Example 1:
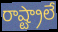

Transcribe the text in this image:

రాష్ట్రాలే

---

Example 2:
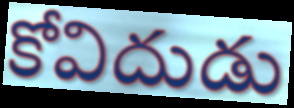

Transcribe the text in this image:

కోవిదుడు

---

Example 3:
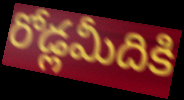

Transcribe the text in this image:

రోడ్లమీదికి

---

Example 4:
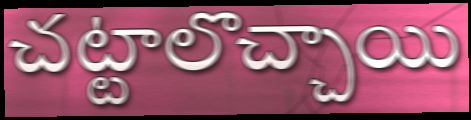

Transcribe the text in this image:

చట్టాలొచ్చాయి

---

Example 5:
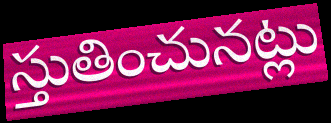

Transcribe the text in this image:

స్తుతించునట్లు